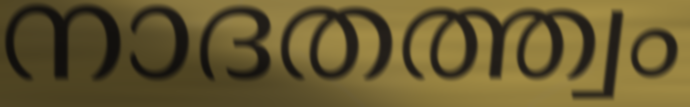
നാദതത്ത്വം